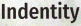
Indentity